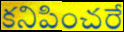
కనిపించరే